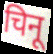
चिनू